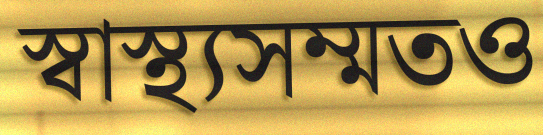
স্বাস্থ্যসম্মতও